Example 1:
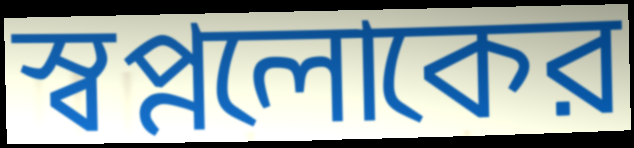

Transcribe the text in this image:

স্বপ্নলোকের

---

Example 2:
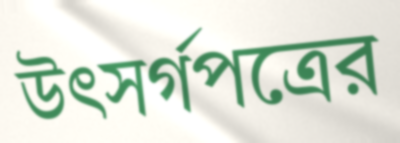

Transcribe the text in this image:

উৎসর্গপত্রের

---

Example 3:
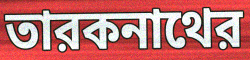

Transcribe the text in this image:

তারকনাথের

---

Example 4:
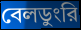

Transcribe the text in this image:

বেলডুংরি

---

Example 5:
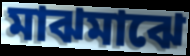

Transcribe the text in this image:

মাঝমাঝে